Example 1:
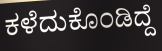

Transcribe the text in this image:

ಕಳೆದುಕೊಂಡಿದ್ದೆ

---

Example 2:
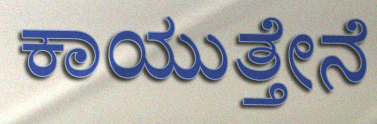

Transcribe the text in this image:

ಕಾಯುತ್ತೇನೆ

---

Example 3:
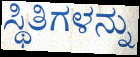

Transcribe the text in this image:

ಸ್ಥಿತಿಗಳನ್ನು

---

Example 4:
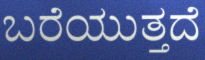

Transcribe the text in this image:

ಬರೆಯುತ್ತದೆ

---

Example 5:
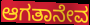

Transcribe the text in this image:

ಆಗತಾನೇವ